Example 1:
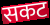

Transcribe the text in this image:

सकट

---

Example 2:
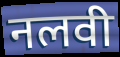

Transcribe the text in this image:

नलवी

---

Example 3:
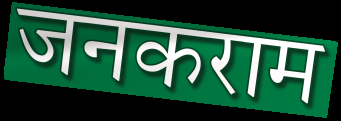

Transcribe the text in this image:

जनकराम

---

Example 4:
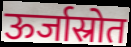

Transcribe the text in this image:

ऊर्जास्रोत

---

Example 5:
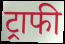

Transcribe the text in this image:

ट्राफी